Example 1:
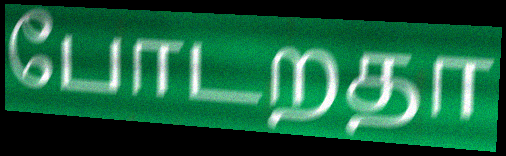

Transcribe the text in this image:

போடறதா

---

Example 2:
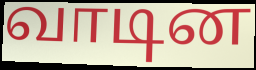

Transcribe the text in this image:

வாடின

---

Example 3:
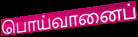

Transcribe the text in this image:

பொய்வானைப்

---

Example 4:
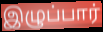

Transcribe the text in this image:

இழுப்பார்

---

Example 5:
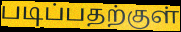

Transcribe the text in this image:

படிப்பதற்குள்